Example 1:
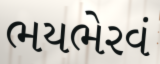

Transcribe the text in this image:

ભયભેરવં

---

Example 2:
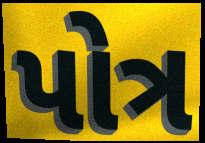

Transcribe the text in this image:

પોત્ર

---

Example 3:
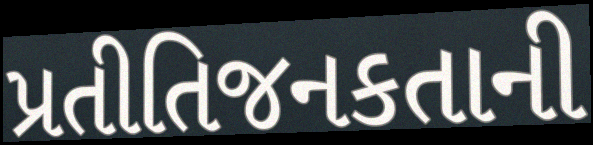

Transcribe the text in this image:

પ્રતીતિજનકતાની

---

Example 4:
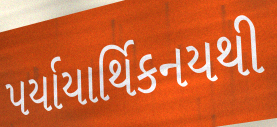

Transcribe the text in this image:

પર્યાયાર્થિકનયથી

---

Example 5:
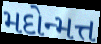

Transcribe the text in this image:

મદોન્મત્ત